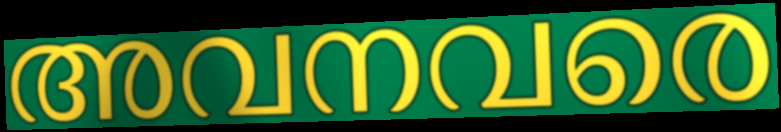
അവനവരെ